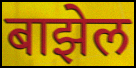
बाझेल